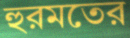
হুরমতের